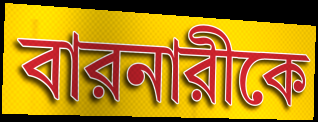
বারনারীকে